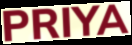
PRIYA